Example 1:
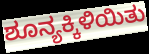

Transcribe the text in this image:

ಶೂನ್ಯಕ್ಕಿಳಿಯಿತು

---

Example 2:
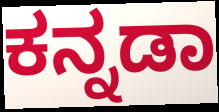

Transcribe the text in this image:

ಕನ್ನಡಾ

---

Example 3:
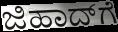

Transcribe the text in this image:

ಜಿಹಾದ್‌ಗೆ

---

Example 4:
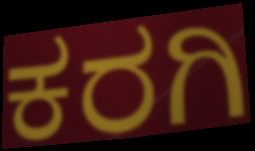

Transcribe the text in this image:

ಕರಗಿ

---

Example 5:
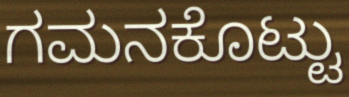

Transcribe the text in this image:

ಗಮನಕೊಟ್ಟು